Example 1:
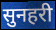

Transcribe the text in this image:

सुनहरी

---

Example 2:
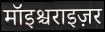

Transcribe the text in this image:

मॉइश्चराइज़र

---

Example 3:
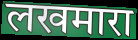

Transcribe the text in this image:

लखमारा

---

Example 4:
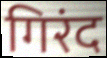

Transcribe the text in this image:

गिरंद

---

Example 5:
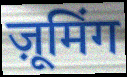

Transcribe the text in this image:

ज़ूमिंग